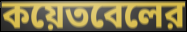
কয়েতবেলের